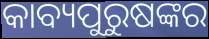
କାବ୍ୟପୁରୁଷଙ୍କର